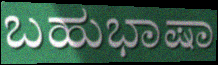
ಬಹುಭಾಷಾ